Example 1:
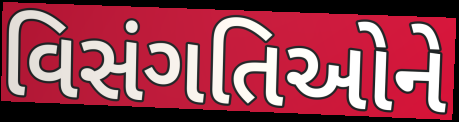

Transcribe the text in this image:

વિસંગતિઓને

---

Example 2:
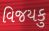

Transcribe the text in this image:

વિજયકુ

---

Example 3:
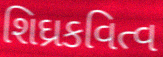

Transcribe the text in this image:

શિઘ્રકવિત્વ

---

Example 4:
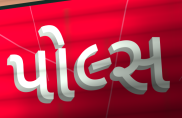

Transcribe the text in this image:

પોલ્સ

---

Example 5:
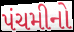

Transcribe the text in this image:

પંચમીનો